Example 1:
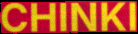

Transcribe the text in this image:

CHINKI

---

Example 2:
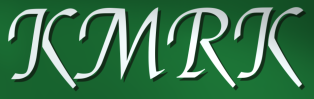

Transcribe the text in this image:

KMRK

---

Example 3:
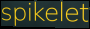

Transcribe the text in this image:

spikelet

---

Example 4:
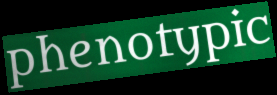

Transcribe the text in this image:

phenotypic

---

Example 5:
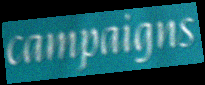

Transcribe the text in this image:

campaigns